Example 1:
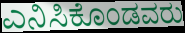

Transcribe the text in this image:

ಎನಿಸಿಕೊಂಡವರು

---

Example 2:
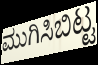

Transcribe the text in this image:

ಮುಗಿಸಿಬಿಟ್ಟ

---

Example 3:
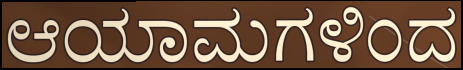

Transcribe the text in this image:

ಆಯಾಮಗಳಿಂದ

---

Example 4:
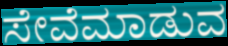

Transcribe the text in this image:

ಸೇವೆಮಾಡುವ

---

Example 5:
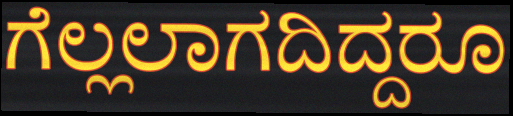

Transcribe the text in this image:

ಗೆಲ್ಲಲಾಗದಿದ್ದರೂ